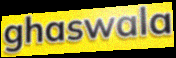
ghaswala